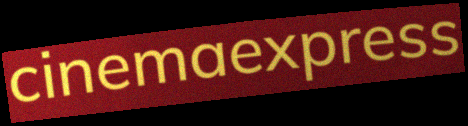
cinemaexpress